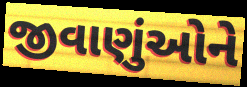
જીવાણુંઓને